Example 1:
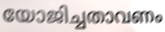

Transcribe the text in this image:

യോജിച്ചതാവണം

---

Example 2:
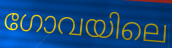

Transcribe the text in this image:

ഗോവയിലെ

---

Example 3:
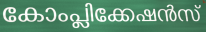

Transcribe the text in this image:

കോംപ്ലിക്കേഷൻസ്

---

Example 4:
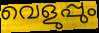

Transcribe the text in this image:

വെളുപ്പും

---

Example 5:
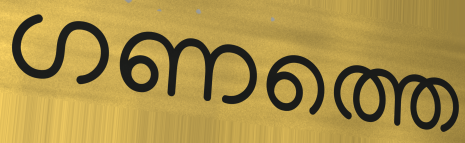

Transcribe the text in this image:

ഗണത്തെ